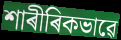
শাৰীৰিকভাৱে